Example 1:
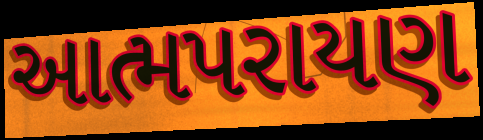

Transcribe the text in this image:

આત્મપરાયણ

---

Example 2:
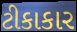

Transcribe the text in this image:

ટીકાકાર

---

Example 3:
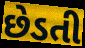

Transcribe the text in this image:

છેડતી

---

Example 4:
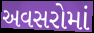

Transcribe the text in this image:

અવસરોમાં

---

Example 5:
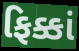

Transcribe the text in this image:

ફિક્કાં